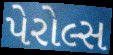
પેરોલ્સ